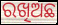
ରଖିଅଛ